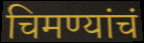
चिमण्यांचं